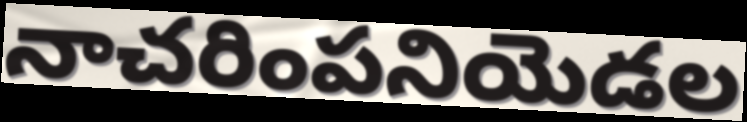
నాచరింపనియెడల